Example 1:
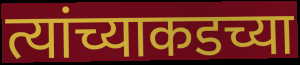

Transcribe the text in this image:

त्यांच्याकडच्या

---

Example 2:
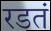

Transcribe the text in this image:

रडतं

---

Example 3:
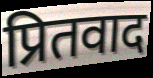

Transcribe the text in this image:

प्रितवाद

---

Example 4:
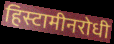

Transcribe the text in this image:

हिस्टामीनरोधी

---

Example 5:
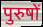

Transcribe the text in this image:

पुरुषों